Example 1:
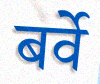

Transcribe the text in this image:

बर्वे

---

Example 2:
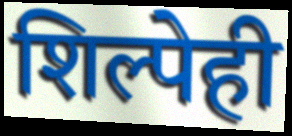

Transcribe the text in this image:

शिल्पेही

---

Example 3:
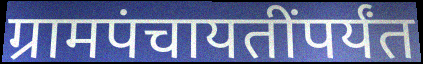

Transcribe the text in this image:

ग्रामपंचायतींपर्यंत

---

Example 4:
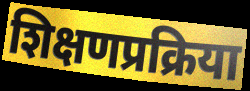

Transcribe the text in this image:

शिक्षणप्रक्रिया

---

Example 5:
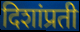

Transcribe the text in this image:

दिशांप्रती